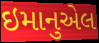
ઇમાનુએલ